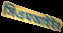
সিএমআইইর